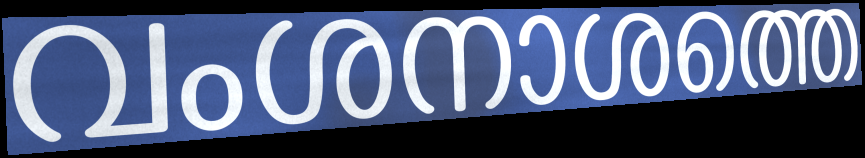
വംശനാശത്തെ